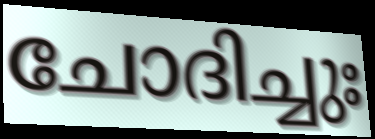
ചോദിച്ചുഃ